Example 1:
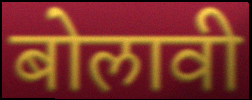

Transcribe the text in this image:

बोलावी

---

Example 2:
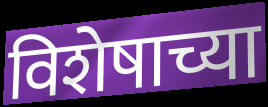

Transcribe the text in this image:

विशेषाच्या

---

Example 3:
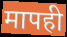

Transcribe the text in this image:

मापही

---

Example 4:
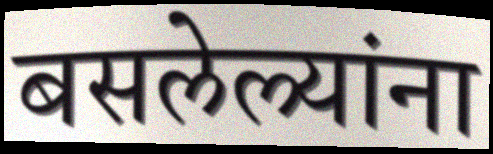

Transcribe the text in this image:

बसलेल्यांना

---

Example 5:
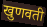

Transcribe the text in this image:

खुणवती